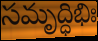
సమృద్ధిభిః